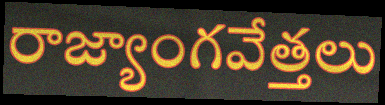
రాజ్యాంగవేత్తలు